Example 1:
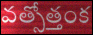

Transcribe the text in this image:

వత్సోత్తంక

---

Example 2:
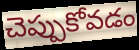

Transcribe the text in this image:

చెప్పుకోవడం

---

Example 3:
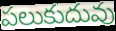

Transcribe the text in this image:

పలుకుదువు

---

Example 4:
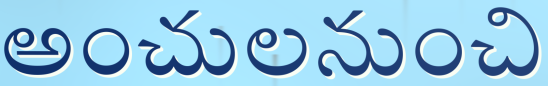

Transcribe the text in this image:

అంచులనుంచి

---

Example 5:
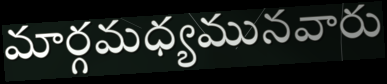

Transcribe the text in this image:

మార్గమధ్యమునవారు